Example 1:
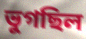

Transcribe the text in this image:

ভুগছিল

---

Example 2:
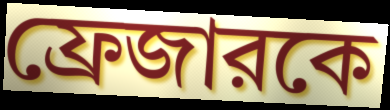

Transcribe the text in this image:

ফ্রেজারকে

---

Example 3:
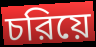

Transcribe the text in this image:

চরিয়ে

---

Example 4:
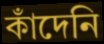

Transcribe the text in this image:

কাঁদেনি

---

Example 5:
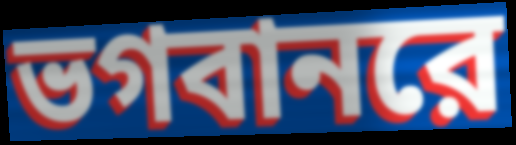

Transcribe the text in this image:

ভগবানরে